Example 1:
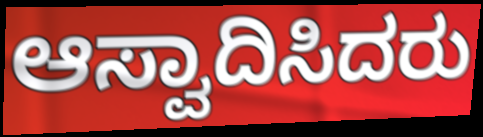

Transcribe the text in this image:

ಆಸ್ವಾದಿಸಿದರು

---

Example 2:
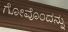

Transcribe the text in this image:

ಗೋವೊಂದನ್ನು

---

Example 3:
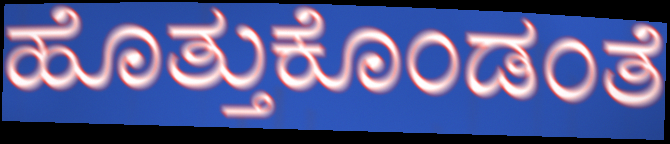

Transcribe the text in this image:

ಹೊತ್ತುಕೊಂಡಂತೆ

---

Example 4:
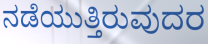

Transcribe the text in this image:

ನಡೆಯುತ್ತಿರುವುದರ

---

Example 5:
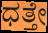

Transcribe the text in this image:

ಧತ್ತೇ